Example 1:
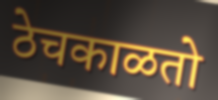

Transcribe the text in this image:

ठेचकाळतो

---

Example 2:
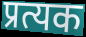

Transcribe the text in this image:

प्रत्यक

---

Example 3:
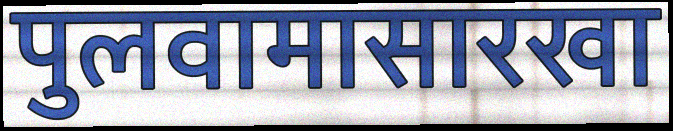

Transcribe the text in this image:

पुलवामासारखा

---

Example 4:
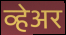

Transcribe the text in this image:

व्हेअर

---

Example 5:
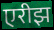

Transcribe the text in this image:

एरीझ